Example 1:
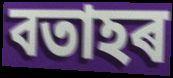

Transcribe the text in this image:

বতাহৰ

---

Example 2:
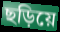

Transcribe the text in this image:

ছড়িয়ে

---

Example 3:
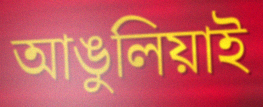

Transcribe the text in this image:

আঙুলিয়াই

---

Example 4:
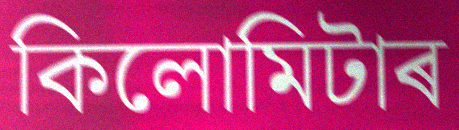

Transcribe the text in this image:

কিলোমিটাৰ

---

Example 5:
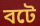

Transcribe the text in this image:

বটে